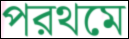
পরথমে